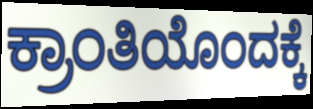
ಕ್ರಾಂತಿಯೊಂದಕ್ಕೆ